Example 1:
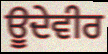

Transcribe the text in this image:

ਊਦੇਵੀਰ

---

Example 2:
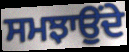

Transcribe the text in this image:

ਸਮਝਾਉੰਦੇ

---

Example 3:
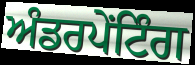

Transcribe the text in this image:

ਅੰਡਰਪੇਂਟਿੰਗ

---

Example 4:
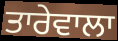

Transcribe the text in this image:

ਤਾਰੇਵਾਲਾ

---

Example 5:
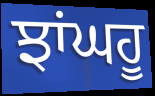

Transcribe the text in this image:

ਝਾਂਘਹੂ